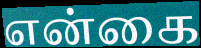
என்கை